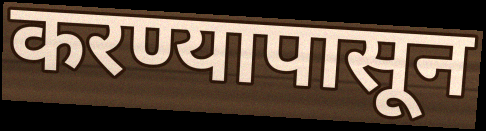
करण्यापासून